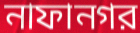
নাফানগর